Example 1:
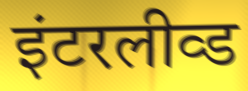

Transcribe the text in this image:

इंटरलीव्ड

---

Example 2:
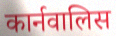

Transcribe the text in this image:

कार्नवालिस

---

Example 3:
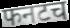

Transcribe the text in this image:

फनटच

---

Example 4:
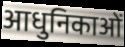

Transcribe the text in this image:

आधुनिकाओं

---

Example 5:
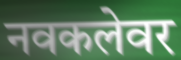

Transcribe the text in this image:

नवकलेवर